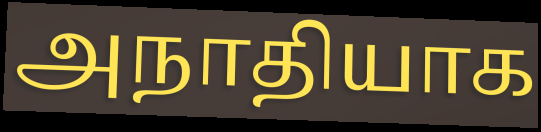
அநாதியாக